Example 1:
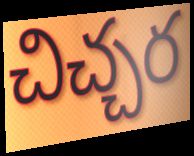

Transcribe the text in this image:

చిచ్చర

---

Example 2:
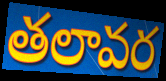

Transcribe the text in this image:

తలావర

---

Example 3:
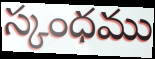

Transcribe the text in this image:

స్కంధము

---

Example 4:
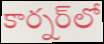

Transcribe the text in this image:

కార్నర్‌లో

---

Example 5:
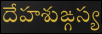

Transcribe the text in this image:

దేహశుఙ్గస్య